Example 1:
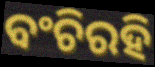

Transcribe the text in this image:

ବଂଚିରହି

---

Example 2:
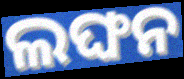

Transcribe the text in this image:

ଲଙ୍ଘନ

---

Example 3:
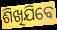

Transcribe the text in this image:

ଶିଖିଯିବେ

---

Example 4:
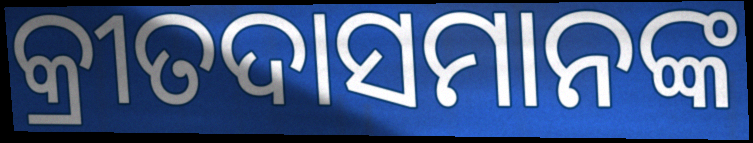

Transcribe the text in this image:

କ୍ରୀତଦାସମାନଙ୍କ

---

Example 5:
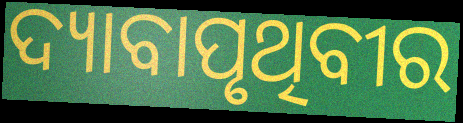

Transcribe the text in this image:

ଦ୍ୟାବାପୃଥିବୀର